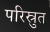
परिस्रुत